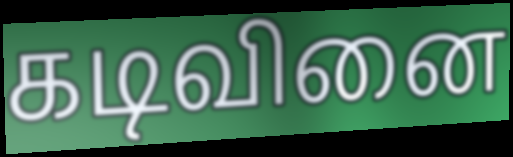
கடிவினை